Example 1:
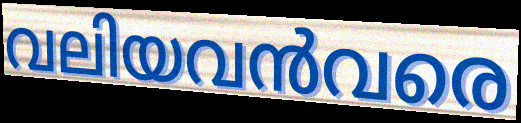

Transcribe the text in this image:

വലിയവൻവരെ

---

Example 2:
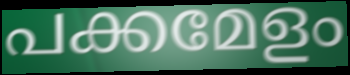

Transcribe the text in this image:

പക്കമേളം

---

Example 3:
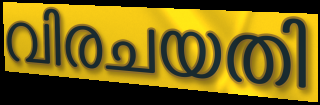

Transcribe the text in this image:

വിരചയതി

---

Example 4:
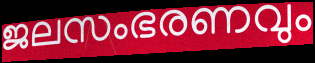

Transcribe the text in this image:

ജലസംഭരണവും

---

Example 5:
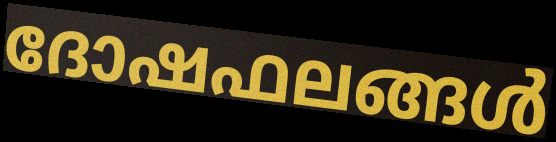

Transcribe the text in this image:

ദോഷഫലങ്ങൾ